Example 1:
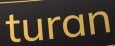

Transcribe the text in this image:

turan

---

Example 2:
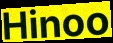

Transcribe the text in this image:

Hinoo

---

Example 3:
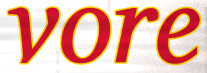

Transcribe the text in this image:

vore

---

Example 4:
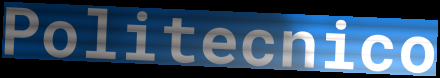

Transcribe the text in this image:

Politecnico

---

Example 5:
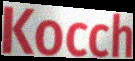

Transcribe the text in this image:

Kocch